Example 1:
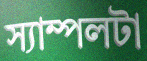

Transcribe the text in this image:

স্যাম্পলটা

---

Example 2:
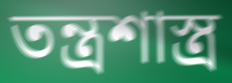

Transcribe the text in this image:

তন্ত্রশাস্ত্র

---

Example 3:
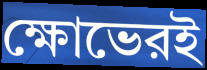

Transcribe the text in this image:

ক্ষোভেরই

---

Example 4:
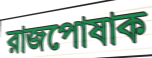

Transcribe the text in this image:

রাজপোষাক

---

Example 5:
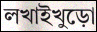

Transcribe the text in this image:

লখাইখুড়ো